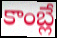
కాంబ్లే